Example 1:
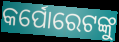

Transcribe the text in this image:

କର୍ପୋରେଟଙ୍କୁ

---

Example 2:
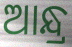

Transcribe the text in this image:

ଆନ୍ଧ୍ର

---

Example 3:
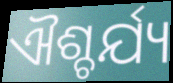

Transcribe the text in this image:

ଐଶ୍ଚର୍ଯ୍ୟ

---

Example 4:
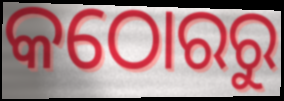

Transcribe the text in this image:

କଠୋରରୁ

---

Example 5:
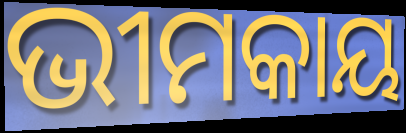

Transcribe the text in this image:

ଭୀମକାୟ